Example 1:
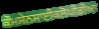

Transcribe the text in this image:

ਕੌਮਸੇਨਸਾਈਕਲੋਪੀਡੀਆ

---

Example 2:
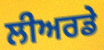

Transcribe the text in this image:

ਲੀਅਰਡੇ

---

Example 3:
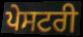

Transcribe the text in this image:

ਪੇਸਟਰੀ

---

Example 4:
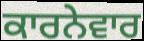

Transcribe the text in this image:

ਕਾਰਨੇਵਾਰ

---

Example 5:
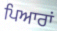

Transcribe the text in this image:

ਪਿਆਰਾਂ